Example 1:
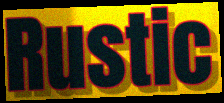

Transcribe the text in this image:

Rustic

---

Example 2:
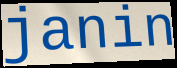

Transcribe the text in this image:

janin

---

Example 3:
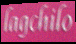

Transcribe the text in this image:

lagchilo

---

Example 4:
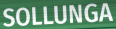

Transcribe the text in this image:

SOLLUNGA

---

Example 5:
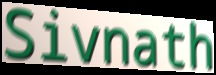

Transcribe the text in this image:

Sivnath